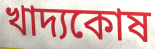
খাদ্যকোষ